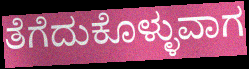
ತೆಗೆದುಕೊಳ್ಳುವಾಗ